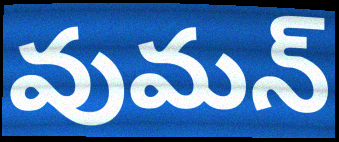
వుమన్